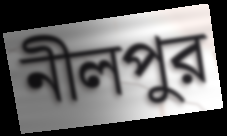
নীলপুর